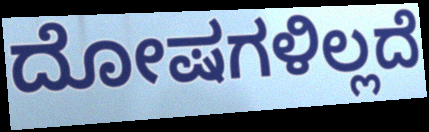
ದೋಷಗಳಿಲ್ಲದೆ